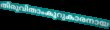
തിരുവിതാംകൂറുകാരനായ